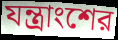
যন্ত্রাংশের